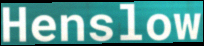
Henslow